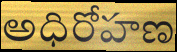
అధిరోహణ